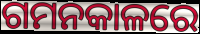
ଗମନକାଳରେ